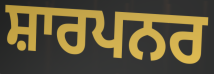
ਸ਼ਾਰਪਨਰ